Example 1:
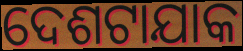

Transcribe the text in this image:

ଦେଶଟାଯାକ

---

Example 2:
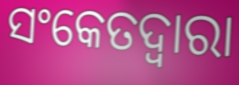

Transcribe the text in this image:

ସଂକେତଦ୍ଵାରା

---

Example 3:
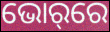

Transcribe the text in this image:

ଭୋର୍‌ରେ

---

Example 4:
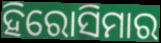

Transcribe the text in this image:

ହିରୋସିମାର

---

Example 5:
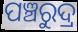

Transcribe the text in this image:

ପଞ୍ଚରୁଦ୍ର